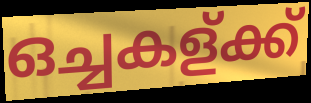
ഒച്ചകള്ക്ക്